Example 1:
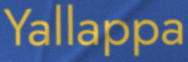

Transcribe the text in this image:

Yallappa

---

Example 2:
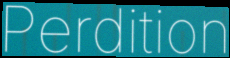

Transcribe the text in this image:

Perdition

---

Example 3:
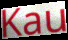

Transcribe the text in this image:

Kau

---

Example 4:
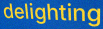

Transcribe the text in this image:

delighting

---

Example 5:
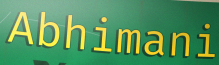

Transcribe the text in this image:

Abhimani